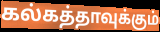
கல்கத்தாவுக்கும்